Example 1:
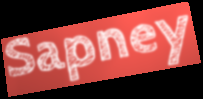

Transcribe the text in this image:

Sapney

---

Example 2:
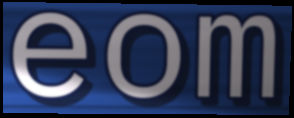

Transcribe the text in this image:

eom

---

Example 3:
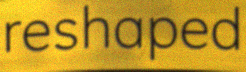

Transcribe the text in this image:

reshaped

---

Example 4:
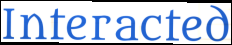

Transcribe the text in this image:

Interacted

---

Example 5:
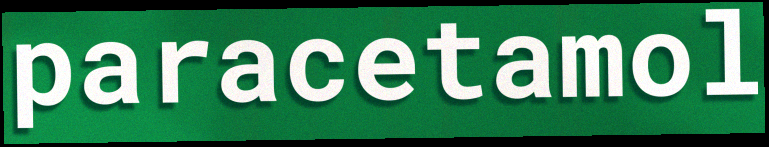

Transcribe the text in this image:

paracetamol